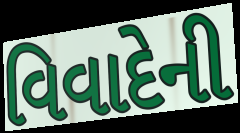
વિવાદેની